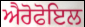
ਐਰੋਫੋਇਲ